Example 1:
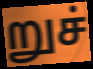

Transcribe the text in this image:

றுச்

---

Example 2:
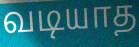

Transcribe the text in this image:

வடியாத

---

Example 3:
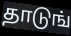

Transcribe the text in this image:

தாடுங்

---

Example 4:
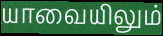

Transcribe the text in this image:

யாவையிலும்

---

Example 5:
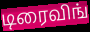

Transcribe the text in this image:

டிரைவிங்